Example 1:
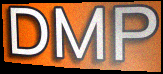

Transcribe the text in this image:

DMP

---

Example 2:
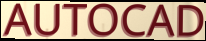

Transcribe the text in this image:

AUTOCAD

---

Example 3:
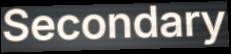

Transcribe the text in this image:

Secondary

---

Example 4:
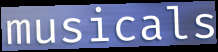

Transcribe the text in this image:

musicals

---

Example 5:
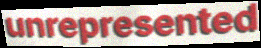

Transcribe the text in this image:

unrepresented